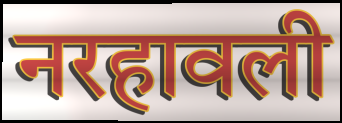
नरहावली